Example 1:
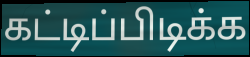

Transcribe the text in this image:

கட்டிப்பிடிக்க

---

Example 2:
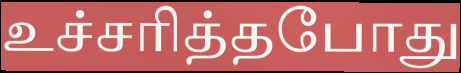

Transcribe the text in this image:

உச்சரித்தபோது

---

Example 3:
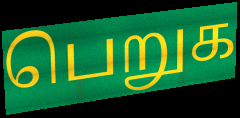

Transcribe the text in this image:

பெறுக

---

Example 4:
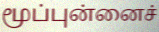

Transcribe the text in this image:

மூப்புன்னைச்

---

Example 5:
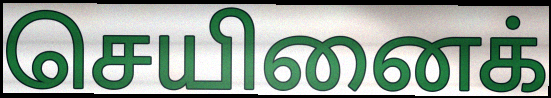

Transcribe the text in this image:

செயினைக்